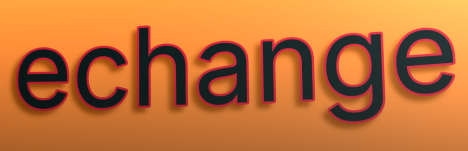
echange